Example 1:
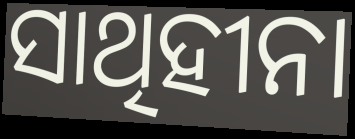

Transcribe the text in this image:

ସାଥିହୀନା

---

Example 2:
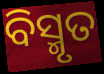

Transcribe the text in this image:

ବିସ୍ମୃତ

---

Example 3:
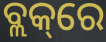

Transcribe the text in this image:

ବ୍ଲକ୍‌ରେ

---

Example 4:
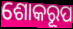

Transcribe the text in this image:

ଶୋକରୂପ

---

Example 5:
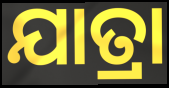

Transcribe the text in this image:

ଯାତ୍ରା